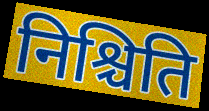
निश्चिति